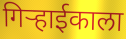
गिर्‍हाईकाला